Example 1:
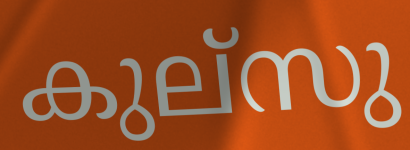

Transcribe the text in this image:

കുല്സു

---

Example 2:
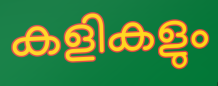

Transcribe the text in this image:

കളികളും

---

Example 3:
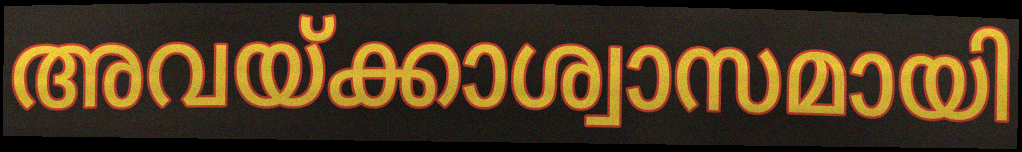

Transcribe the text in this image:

അവയ്ക്കാശ്വാസമായി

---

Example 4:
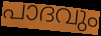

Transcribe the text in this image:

പാദവും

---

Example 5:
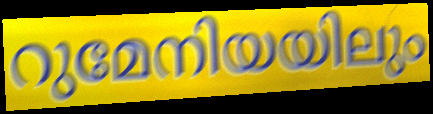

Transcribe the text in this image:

റുമേനിയയിലും